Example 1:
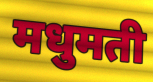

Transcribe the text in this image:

मधुमती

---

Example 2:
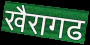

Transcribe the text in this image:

खैरागढ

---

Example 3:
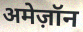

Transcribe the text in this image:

अमेज़ॉन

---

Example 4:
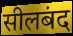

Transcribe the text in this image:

सीलबंद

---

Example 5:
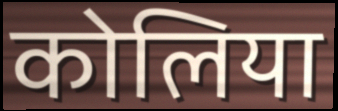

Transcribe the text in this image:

कोलिया